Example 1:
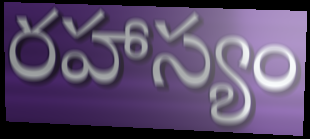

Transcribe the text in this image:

రహాస్యం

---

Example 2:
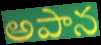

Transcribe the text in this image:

అపాన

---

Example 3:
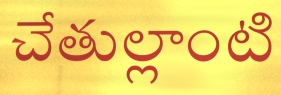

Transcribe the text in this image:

చేతుల్లాంటి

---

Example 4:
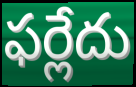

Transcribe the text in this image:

ఫర్లేదు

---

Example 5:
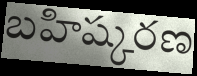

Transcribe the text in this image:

బహిష్కరణ